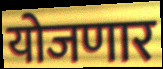
योजणार